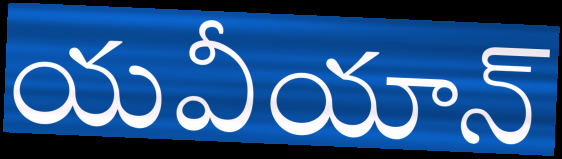
యవీయాన్